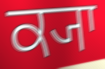
ਕ੍ਯਾ